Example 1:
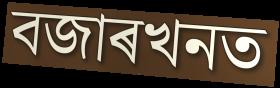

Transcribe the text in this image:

বজাৰখনত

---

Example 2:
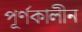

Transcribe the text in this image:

পূৰ্ণকালীন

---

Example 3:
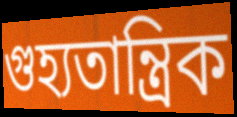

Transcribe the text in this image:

গুহ্যতান্ত্ৰিক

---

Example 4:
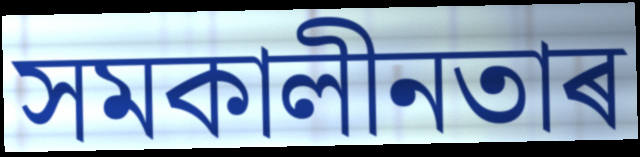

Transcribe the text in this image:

সমকালীনতাৰ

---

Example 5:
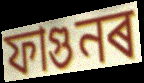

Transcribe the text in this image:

ফাগুনৰ